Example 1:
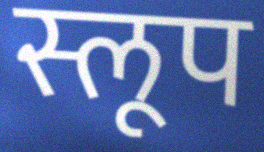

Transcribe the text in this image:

स्लूप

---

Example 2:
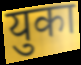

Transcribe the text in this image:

युका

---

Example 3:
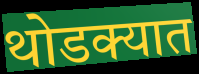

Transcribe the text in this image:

थोडक्यात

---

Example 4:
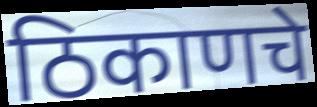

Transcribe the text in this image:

ठिकाणचे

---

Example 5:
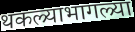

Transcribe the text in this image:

थकल्याभागल्या